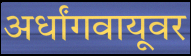
अर्धांगवायूवर